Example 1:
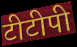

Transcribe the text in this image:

टीटीपी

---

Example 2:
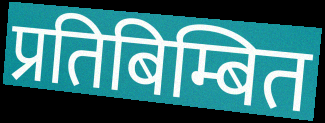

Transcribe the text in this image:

प्रतिबिम्बित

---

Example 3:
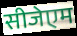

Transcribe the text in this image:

सीजेएम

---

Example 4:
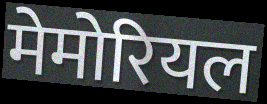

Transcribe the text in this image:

मेमोरियल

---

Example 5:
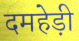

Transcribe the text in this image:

दमहेड़ी